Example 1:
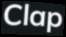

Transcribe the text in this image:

Clap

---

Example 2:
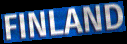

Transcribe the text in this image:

FINLAND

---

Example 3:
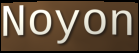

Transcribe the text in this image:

Noyon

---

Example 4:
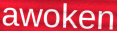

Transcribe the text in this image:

awoken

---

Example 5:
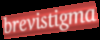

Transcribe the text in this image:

brevistigma